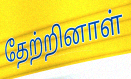
தேற்றினாள்